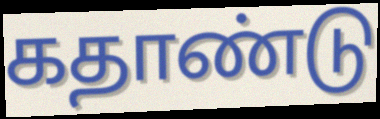
கதாண்டு